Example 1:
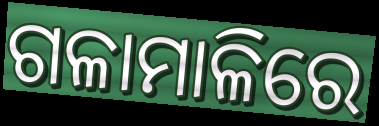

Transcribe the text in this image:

ଗଳାମାଳିରେ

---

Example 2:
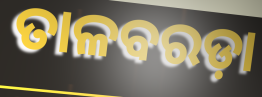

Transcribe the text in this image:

ତାଳବରଡ଼ା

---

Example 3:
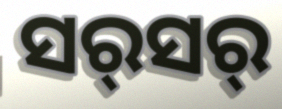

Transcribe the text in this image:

ସର୍‍ସର୍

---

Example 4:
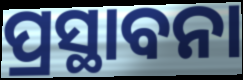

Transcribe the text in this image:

ପ୍ରସ୍ଥାବନା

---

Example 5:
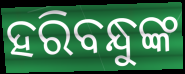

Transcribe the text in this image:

ହରିବନ୍ଧୁଙ୍କ